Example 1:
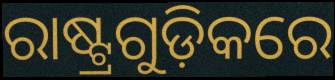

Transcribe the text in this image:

ରାଷ୍ଟ୍ରଗୁଡ଼ିକରେ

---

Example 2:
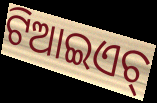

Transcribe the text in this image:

ଟିଆଇଏଚ୍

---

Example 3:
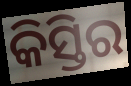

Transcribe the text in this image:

କିସ୍ତିର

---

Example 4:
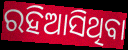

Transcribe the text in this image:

ରହିଆସିଥିବା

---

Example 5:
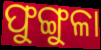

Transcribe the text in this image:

ଫୁଙ୍ଗୁଳା